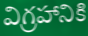
విగ్రహానికి